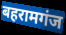
बहरामगंज